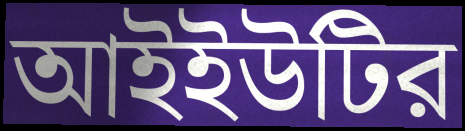
আইইউটির